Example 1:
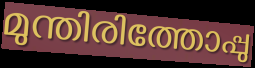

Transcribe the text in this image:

മുന്തിരിത്തോപ്പു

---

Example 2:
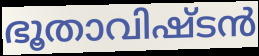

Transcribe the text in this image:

ഭൂതാവിഷ്ടൻ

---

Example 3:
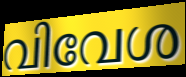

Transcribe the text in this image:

വിവേശ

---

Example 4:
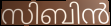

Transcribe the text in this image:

സിബിൻ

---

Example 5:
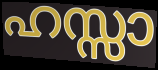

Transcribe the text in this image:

ഹസ്സാ